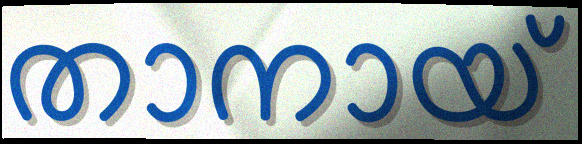
താനായ്